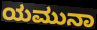
ಯಮುನಾ